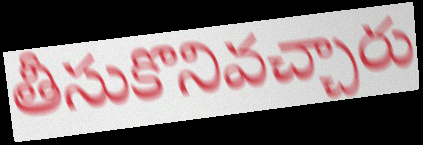
తీసుకొనివచ్చారు